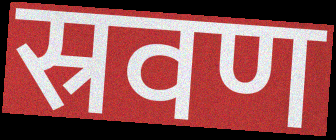
स्रवण